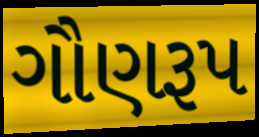
ગૌણરૂપ